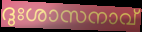
ദുഃശാസനാവ്